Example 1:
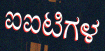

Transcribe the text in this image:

ಐಐಟಿಗಳ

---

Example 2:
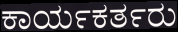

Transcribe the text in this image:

ಕಾರ್ಯಕರ್ತರು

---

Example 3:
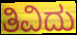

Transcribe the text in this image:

ತಿವಿದು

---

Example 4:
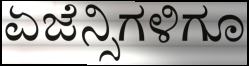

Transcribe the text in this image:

ಏಜೆನ್ಸಿಗಳಿಗೂ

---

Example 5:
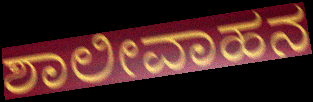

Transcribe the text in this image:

ಶಾಲೀವಾಹನ